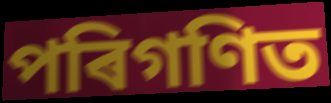
পৰিগণিত